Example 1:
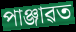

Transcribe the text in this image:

পাঞ্জাৱত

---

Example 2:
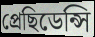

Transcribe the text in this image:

প্ৰেছিডেন্সি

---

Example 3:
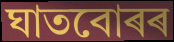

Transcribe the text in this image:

ঘাতবোৰৰ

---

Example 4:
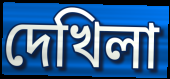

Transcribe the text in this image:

দেখিলা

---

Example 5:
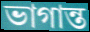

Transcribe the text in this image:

ভাগান্ত